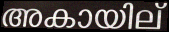
അകായില്